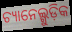
ଚ୍ୟାନେଲ୍ଗୁଡ଼ିକ